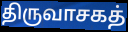
திருவாசகத்